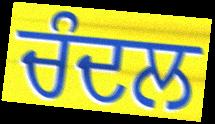
ਚੰਦਲ